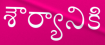
శౌర్యానికి